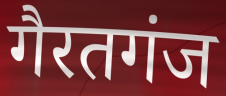
गैरतगंज